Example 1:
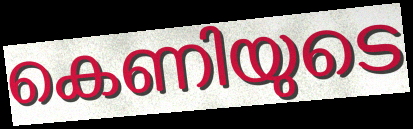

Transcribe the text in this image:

കെണിയുടെ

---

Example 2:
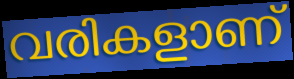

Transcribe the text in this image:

വരികളാണ്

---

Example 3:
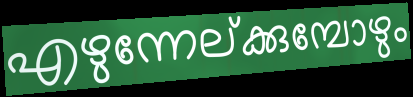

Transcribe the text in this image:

എഴുന്നേല്ക്കുമ്പോഴും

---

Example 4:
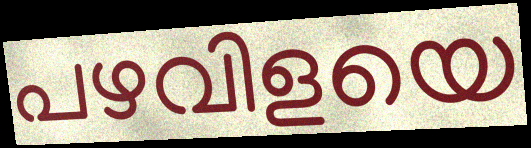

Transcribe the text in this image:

പഴവിളയെ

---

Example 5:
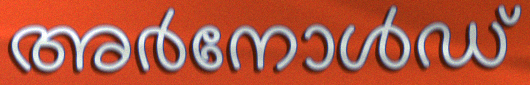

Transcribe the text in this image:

അർനോൾഡ്